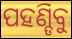
ପହଣ୍ଡିବୁ